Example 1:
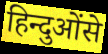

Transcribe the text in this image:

हिन्दुओंसे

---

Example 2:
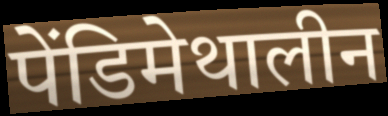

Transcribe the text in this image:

पेंडिमेथालीन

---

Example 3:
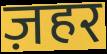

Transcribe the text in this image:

ज़हर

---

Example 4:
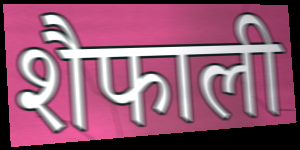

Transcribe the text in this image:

शैफाली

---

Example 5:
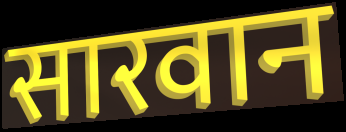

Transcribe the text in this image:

सारवान